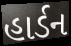
હાર્ડન